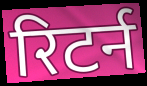
रिटर्न